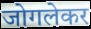
जोगलेकर